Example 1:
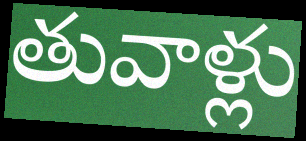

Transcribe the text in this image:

తువాళ్లు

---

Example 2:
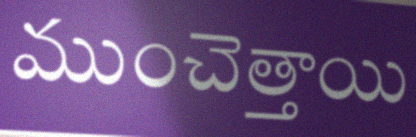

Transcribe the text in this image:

ముంచెత్తాయి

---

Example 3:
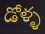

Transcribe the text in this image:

డోళ్ళ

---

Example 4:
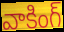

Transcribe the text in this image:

వాకింగ్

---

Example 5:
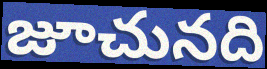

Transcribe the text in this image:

జూచునది